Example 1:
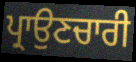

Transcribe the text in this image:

ਪ੍ਰਾਉਣਚਾਰੀ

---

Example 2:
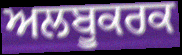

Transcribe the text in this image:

ਅਲਬੂਕਰਕ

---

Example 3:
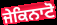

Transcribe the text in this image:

ਜੇਕਿਨਾਟੋ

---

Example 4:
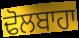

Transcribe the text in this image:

ਢੋਲਬਾਹਾ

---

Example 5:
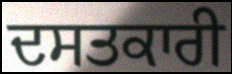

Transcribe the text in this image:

ਦਸਤਕਾਰੀ